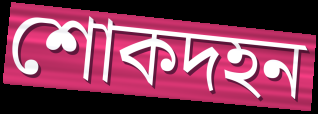
শোকদহন